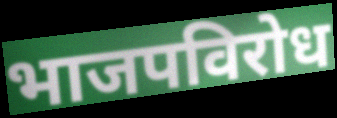
भाजपविरोध